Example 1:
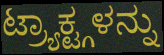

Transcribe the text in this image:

ಟ್ರ್ಯಾಕ್ಟ್ಗಳನ್ನು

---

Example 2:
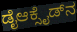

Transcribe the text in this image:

ಡೈಆಕ್ಸೈಡ್‌ನ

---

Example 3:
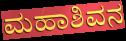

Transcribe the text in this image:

ಮಹಾಶಿವನ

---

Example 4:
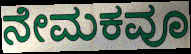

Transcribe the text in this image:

ನೇಮಕವೂ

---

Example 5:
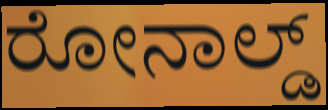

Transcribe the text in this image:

ರೋನಾಲ್ಡ್